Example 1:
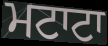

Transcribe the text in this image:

ਮਟਾਟਾ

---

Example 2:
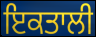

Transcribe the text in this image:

ਇਕਤਾਲੀ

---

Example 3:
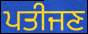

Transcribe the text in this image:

ਪਤੀਜਣ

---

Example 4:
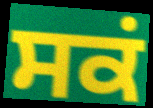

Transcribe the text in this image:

ਸਕਂ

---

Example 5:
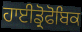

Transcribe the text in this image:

ਹਾਈਡ੍ਰੋਫੋਬਿਕ